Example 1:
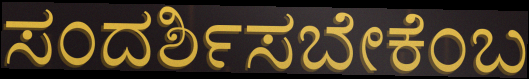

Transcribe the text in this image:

ಸಂದರ್ಶಿಸಬೇಕೆಂಬ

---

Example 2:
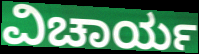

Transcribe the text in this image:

ವಿಚಾರ್ಯ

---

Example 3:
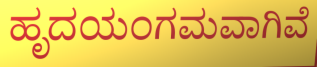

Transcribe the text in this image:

ಹೃದಯಂಗಮವಾಗಿವೆ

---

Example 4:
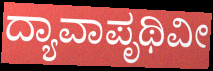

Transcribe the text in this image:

ದ್ಯಾವಾಪೃಥಿವೀ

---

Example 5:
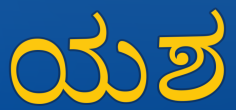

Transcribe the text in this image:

ಯಶ